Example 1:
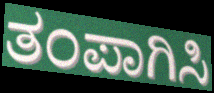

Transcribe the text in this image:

ತಂಪಾಗಿಸಿ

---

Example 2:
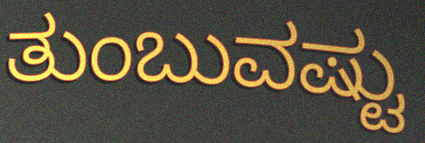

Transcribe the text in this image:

ತುಂಬುವಷ್ಟು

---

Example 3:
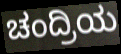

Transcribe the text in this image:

ಚಂದ್ರಿಯ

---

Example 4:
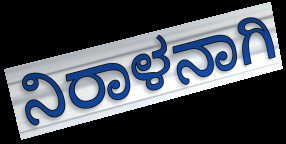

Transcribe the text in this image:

ನಿರಾಳನಾಗಿ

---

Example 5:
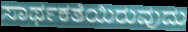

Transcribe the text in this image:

ಸಾರ್ಥಕತೆಯಿರುವುದು